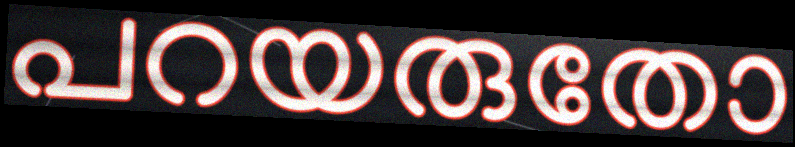
പറയരുതോ